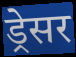
ड्रेसर